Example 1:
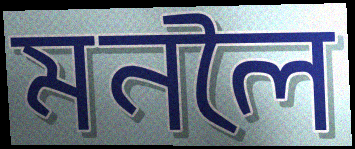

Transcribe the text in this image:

মনলৈ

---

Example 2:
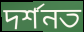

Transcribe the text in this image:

দৰ্শনত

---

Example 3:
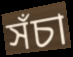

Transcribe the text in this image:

সঁচা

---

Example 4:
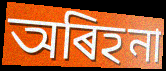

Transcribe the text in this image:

অৰিহনা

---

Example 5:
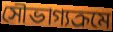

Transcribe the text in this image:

সৌভাগ্যক্ৰমে